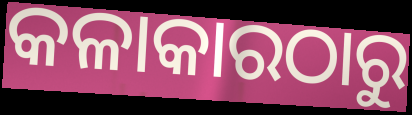
କଳାକାରଠାରୁ